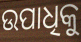
ଉପାଧିକୁ